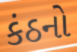
કંઠનો